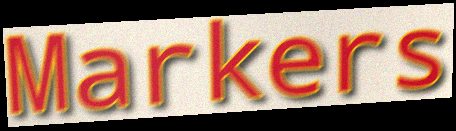
Markers